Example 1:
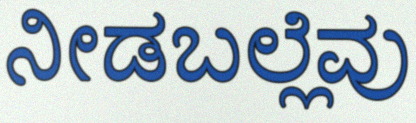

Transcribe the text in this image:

ನೀಡಬಲ್ಲೆವು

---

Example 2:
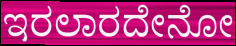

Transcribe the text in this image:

ಇರಲಾರದೇನೋ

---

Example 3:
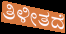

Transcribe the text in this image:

ತಿಳೀತದೆ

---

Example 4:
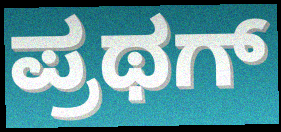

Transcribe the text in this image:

ಪ್ರಥಗ್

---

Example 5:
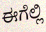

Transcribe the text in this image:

ಈಗೆಲ್ಲಿ